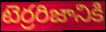
టెర్రరిజానికి